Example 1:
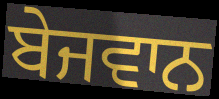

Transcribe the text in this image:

ਬੇਜਵਾਨ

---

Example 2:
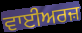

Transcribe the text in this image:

ਵਾਈਅਰਜ਼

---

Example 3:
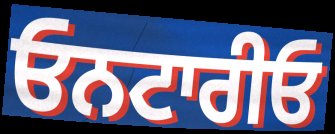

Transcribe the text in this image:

ਓਨਟਾਰੀਓ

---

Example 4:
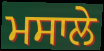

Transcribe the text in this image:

ਮਸਾਲੇ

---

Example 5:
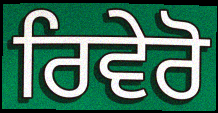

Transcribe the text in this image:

ਰਿਵੇਰੋ